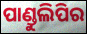
ପାଣ୍ଡୁଲିପିର